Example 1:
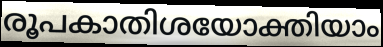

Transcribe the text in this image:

രൂപകാതിശയോക്തിയാം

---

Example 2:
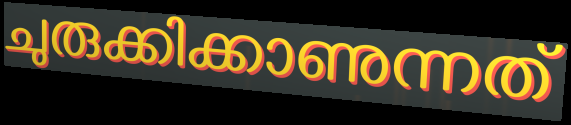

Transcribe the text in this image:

ചുരുക്കിക്കാണുന്നത്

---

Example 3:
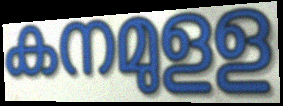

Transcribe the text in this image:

കനമുളള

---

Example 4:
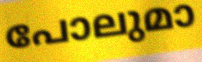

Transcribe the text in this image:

പോലുമാ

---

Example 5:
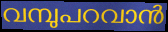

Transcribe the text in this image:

വമ്പുപറവാൻ